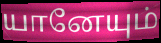
யானேயும்